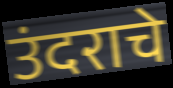
उंदराचे